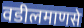
वडीलमाणसे